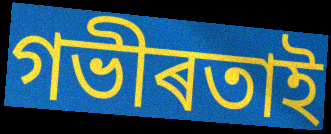
গভীৰতাই